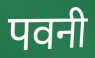
पवनी